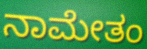
ನಾಮೇತಂ